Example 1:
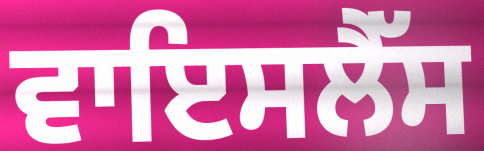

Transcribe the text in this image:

ਵਾਇਸਲੈੱਸ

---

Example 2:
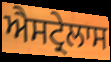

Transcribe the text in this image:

ਐਸਟ੍ਰੇਲਾਸ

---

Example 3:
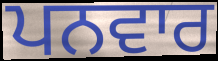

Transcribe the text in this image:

ਪਨਵਾਰ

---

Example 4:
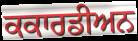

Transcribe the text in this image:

ਕਕਾਰਡੀਅਨ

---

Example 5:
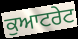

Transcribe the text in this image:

ਕੁਆਟਰੇਟ